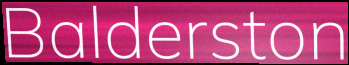
Balderston